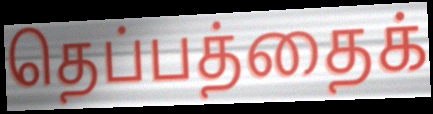
தெப்பத்தைக்